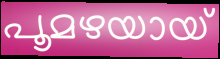
പൂമഴയായ്